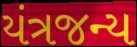
યંત્રજન્ય